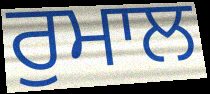
ਰੁਮਾਲ